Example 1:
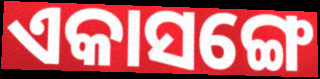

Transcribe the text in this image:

ଏକାସଙ୍ଗେ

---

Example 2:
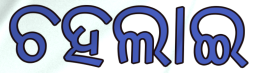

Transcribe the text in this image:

ଚହଲାଇ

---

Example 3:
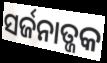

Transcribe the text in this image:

ସର୍ଜନାତ୍ଜକ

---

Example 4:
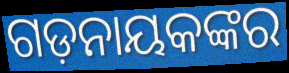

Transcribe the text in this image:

ଗଡ଼ନାୟକଙ୍କର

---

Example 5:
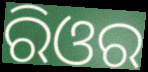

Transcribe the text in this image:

ରିଓର